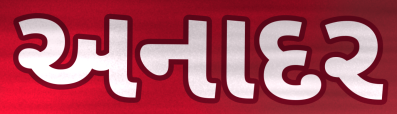
અનાદર